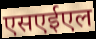
एसएईएल